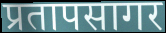
प्रतापसागर